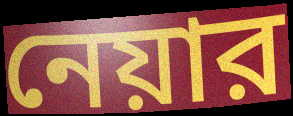
নেয়ার